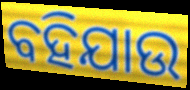
ବହିଯାଉ